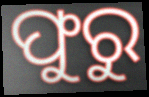
ଫୁରୁ